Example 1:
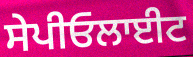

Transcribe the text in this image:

ਸੇਪੀਓਲਾਈਟ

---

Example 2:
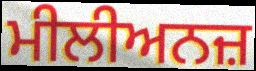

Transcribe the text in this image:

ਮੀਲੀਅਨਜ਼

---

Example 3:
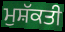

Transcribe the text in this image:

ਮੁਸ਼ੱਕਤੀ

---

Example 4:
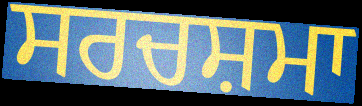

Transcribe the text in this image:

ਸਰਚਸ਼ਮਾ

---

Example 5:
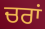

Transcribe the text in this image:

ਚਰਾਂ